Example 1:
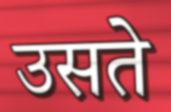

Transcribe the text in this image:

उसते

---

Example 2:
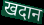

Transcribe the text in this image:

खदान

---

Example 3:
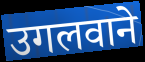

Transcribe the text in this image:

उगलवाने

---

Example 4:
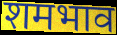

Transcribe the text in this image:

शमभाव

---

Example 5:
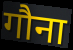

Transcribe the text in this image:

गौना